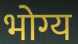
भोग्य